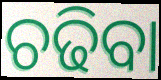
ଚଢିବା